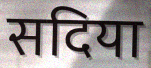
सदिया